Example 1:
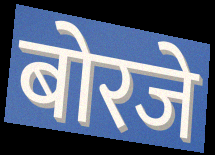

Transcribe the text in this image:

बोरजे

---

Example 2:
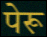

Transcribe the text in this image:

पेरू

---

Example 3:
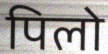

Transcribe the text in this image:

पिलो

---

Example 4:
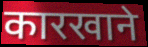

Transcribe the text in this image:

कारखाने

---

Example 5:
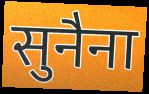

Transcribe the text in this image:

सुनैना